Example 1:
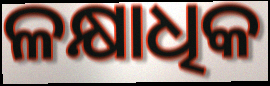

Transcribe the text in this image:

ଳକ୍ଷାଧିକ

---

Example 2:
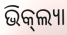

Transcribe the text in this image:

ଭିକ୍‌ଲ୍ୟା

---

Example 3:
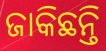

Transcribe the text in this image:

ଜାକିଛନ୍ତି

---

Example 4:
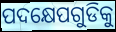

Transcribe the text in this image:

ପଦକ୍ଷେପଗୁଡିକୁ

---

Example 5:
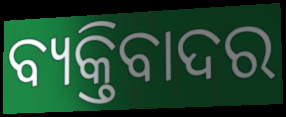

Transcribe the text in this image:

ବ୍ୟକ୍ତିବାଦର